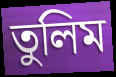
তুলিম